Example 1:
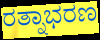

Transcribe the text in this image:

ರತ್ನಾಭರಣ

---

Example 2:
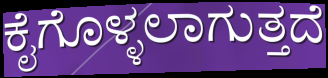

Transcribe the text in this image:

ಕೈಗೊಳ್ಳಲಾಗುತ್ತದೆ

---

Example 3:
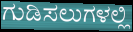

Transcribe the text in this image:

ಗುಡಿಸಲುಗಳಲ್ಲಿ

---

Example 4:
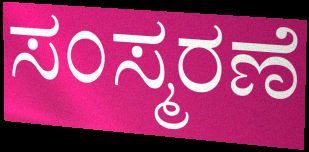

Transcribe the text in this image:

ಸಂಸ್ಮರಣೆ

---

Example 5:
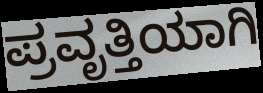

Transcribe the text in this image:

ಪ್ರವೃತ್ತಿಯಾಗಿ